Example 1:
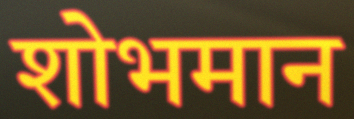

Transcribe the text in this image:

शोभमान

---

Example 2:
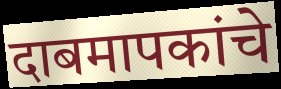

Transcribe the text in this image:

दाबमापकांचे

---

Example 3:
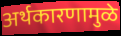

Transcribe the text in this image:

अर्थकारणामुळे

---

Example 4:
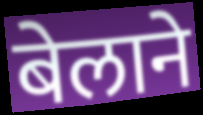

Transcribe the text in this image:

बेलाने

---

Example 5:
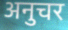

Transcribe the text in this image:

अनुचर